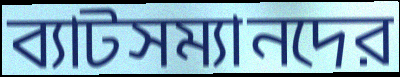
ব্যাটসম্যানদের